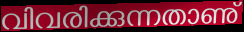
വിവരിക്കുന്നതാണു്